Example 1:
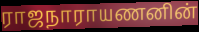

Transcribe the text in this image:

ராஜநாராயணனின்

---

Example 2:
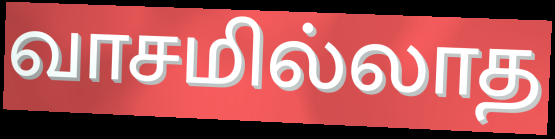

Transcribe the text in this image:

வாசமில்லாத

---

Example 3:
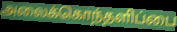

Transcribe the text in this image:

அலைக்கொந்தளிப்பை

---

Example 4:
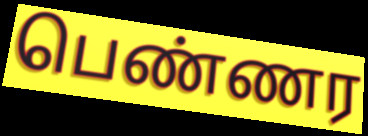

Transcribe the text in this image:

பெண்ணர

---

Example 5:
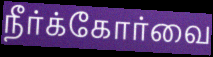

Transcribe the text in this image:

நீர்க்கோர்வை